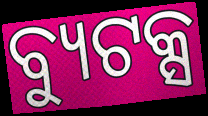
ବ୍ୟୁଟକ୍ସ